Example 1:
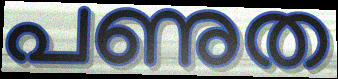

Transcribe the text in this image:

പണുത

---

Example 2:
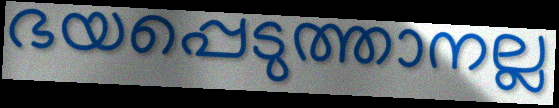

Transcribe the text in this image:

ഭയപ്പെടുത്താനല്ല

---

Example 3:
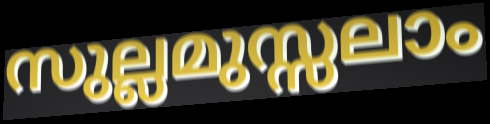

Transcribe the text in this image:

സുല്ലമുസ്സലാം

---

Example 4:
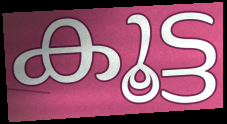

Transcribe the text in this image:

കൂട്ട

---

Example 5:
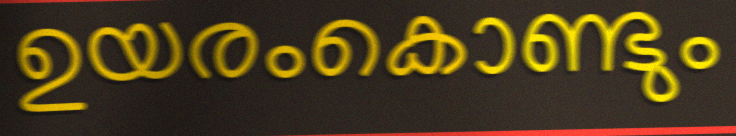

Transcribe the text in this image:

ഉയരംകൊണ്ടും